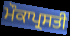
ਮੌਕਾਪ੍ਰਸਤੀ